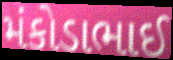
મંકોડાભાઈ